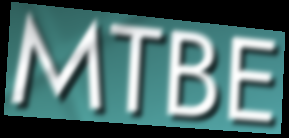
MTBE